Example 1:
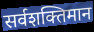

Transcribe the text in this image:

सर्वशक्तिमान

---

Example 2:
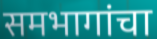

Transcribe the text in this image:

समभागांचा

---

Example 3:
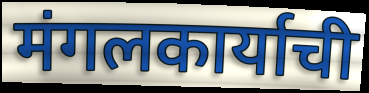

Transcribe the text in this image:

मंगलकार्याची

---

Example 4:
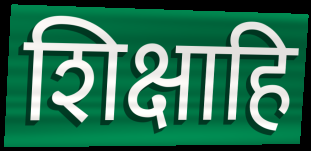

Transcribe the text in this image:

शिक्षाहि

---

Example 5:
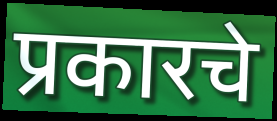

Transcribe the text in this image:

प्रकारचे